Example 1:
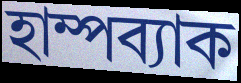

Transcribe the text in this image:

হাম্পব্যাক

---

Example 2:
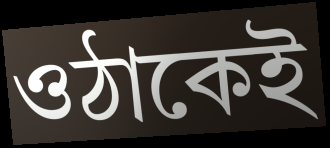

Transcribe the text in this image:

ওঠাকেই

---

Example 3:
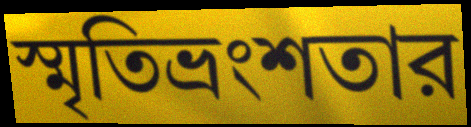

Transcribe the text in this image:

স্মৃতিভ্রংশতার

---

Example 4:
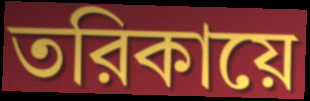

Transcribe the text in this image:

তরিকায়ে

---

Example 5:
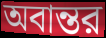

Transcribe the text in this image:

অবান্তর